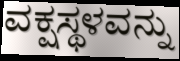
ವಕ್ಷಸ್ಥಳವನ್ನು